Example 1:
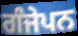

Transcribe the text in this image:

ਗੰਜੇਪਨ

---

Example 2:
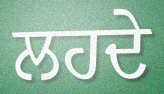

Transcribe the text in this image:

ਲਹਦੇ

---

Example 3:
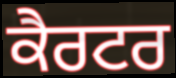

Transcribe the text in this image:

ਕੈਰਟਰ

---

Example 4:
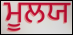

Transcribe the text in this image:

ਮੂਲਯ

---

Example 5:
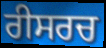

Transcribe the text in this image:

ਰੀਸਰਚ